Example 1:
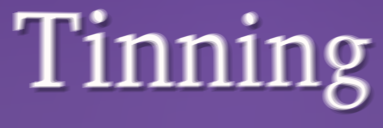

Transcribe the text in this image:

Tinning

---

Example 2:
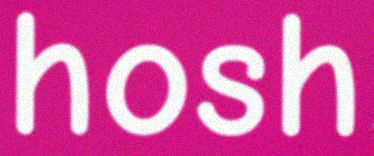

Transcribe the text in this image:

hosh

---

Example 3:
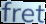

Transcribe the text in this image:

fret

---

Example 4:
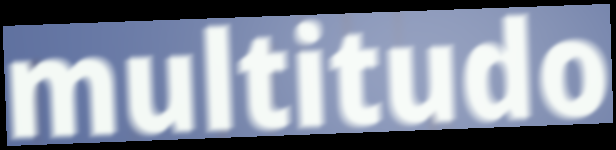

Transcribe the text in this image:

multitudo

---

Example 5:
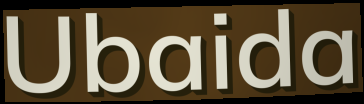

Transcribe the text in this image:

Ubaida